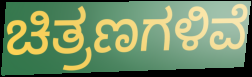
ಚಿತ್ರಣಗಳಿವೆ